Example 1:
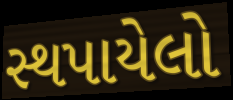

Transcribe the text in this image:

સ્થપાયેલો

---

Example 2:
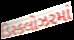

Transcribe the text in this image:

ડિસ્ક્લોઝરમાં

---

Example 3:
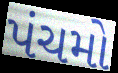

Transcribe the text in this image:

પંચમો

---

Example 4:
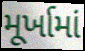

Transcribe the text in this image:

મૂર્ખામાં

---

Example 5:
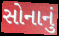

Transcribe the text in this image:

સોનાનું